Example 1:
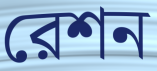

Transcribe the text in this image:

রেশন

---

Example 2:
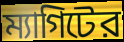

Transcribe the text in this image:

ম্যাগিটের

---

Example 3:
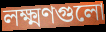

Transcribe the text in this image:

লক্ষ্মণগুলো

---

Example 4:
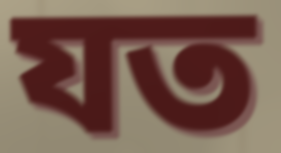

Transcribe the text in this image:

যত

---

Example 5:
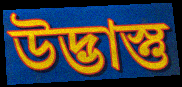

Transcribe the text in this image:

উদ্ভাস্তু